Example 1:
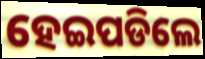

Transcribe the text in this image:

ହେଇପଡିଲେ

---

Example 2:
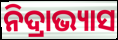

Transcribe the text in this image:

ନିଦ୍ରାଭ୍ୟାସ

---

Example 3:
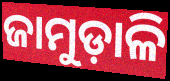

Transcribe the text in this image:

ଜାମୁଡ଼ାଳି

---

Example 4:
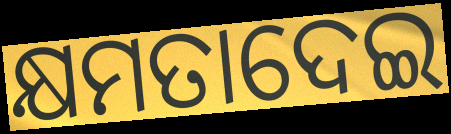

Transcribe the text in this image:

କ୍ଷମତାଦେଇ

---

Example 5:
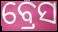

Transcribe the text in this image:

ବ୍ରେସ